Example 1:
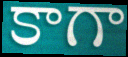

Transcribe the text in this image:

కాగా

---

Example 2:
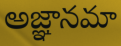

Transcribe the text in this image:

అజ్ఞానమా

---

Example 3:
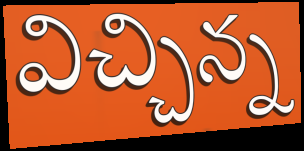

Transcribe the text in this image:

విచ్చిన్న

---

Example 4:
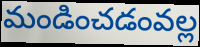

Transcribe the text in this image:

మండించడంవల్ల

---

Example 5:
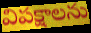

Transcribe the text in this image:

విపక్షాలను